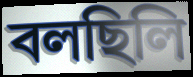
বলছিলি